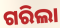
ଗରିଲା